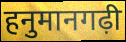
हनुमानगढ़ी